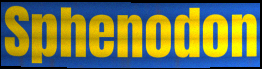
Sphenodon